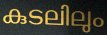
കുടലിലും